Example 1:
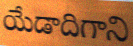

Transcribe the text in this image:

యేడాదిగాని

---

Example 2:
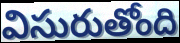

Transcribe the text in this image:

విసురుతోంది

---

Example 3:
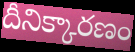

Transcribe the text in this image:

దీనిక్కారణం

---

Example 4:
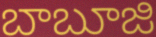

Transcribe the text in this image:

బాబూజి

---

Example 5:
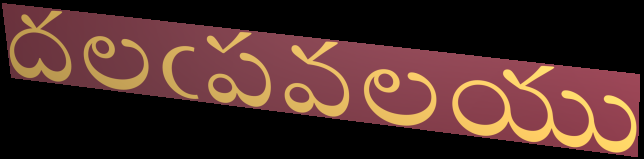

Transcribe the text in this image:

దలఁపవలయు